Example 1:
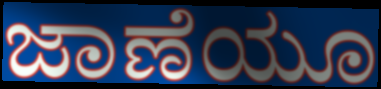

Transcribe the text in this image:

ಜಾಣೆಯೂ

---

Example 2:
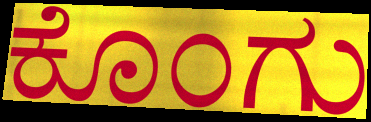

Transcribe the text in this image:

ಕೊಂಗು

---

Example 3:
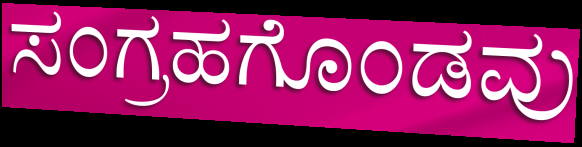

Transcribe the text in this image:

ಸಂಗ್ರಹಗೊಂಡವು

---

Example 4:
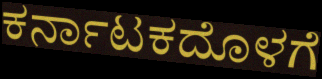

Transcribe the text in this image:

ಕರ್ನಾಟಕದೊಳಗೆ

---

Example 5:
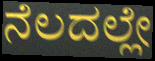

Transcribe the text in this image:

ನೆಲದಲ್ಲೇ